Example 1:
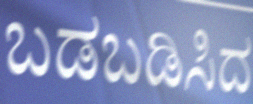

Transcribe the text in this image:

ಬಡಬಡಿಸಿದ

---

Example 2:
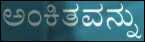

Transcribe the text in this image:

ಅಂಕಿತವನ್ನು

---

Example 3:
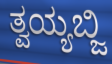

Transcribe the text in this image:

ತ್ವಯ್ಯಬ್ಜಿ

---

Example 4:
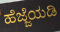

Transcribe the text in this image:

ಹೆಜ್ಜೆಯಡಿ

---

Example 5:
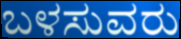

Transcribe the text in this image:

ಬಳಸುವರು